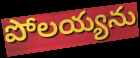
పోలయ్యను